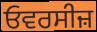
ਓਵਰਸੀਜ਼